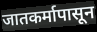
जातकर्मापासून